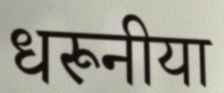
धरूनीया